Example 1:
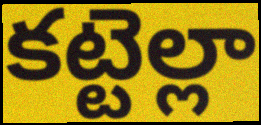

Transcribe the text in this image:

కట్టెల్లా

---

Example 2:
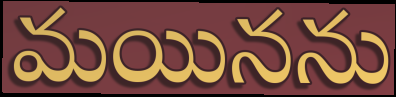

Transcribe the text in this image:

మయినను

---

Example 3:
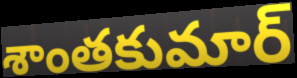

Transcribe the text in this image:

శాంతకుమార్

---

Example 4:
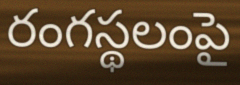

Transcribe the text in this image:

రంగస్థలంపై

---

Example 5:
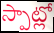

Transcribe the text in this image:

స్పాట్లో